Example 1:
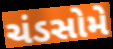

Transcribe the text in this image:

ચંડસોમે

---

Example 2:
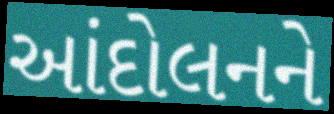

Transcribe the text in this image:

આંદોલનને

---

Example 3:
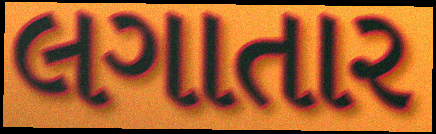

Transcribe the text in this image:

લગાતાર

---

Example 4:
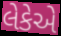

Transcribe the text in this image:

લેકેએ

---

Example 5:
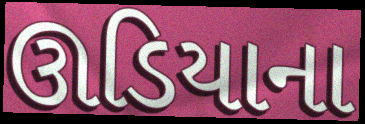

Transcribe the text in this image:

ઊડિયાના